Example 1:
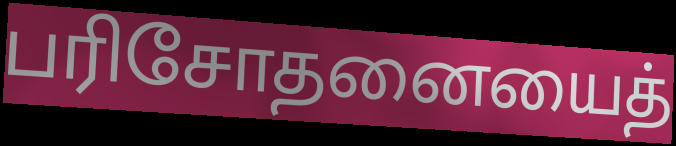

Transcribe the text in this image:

பரிசோதனையைத்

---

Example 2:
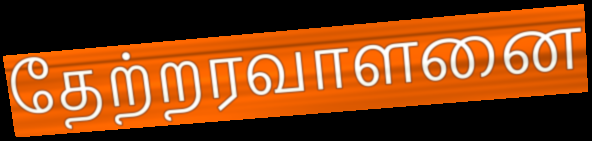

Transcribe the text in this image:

தேற்றரவாளனை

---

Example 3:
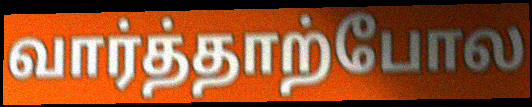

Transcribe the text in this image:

வார்த்தாற்போல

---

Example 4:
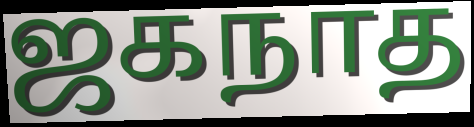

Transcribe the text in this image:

ஜகநாத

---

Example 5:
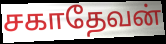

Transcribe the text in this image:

சகாதேவன்